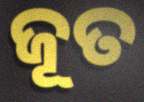
ଜୂତ